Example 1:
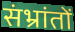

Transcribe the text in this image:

संभ्रांतों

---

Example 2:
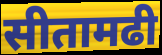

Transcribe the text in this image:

सीतामढी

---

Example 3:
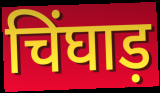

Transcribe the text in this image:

चिंघाड़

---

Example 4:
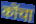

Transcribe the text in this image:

कोंचा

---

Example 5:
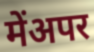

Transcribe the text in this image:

मेंअपर